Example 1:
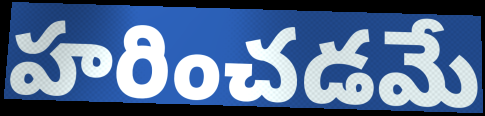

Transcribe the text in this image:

హరించడమే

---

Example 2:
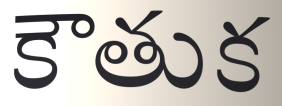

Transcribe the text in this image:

కౌతుక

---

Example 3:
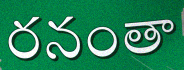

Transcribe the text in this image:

రనంతా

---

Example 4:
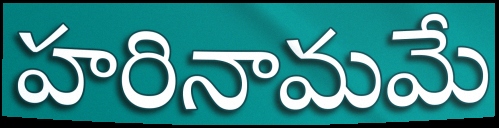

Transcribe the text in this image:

హరినామమే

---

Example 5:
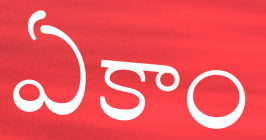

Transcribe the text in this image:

ఏకాం